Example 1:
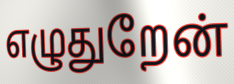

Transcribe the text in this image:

எழுதுறேன்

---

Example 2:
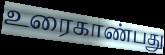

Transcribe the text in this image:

உரைகாண்பது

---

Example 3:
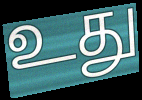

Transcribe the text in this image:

உது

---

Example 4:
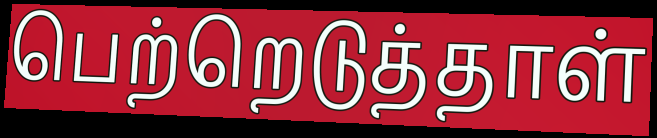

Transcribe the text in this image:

பெற்றெடுத்தாள்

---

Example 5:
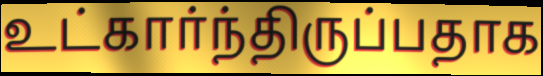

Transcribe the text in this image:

உட்கார்ந்திருப்பதாக